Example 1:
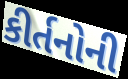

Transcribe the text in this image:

કીર્તનોની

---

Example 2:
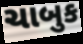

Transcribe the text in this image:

ચાબુક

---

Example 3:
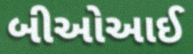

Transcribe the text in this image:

બીઓઆઈ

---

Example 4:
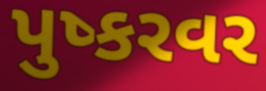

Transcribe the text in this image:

પુષ્કરવર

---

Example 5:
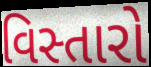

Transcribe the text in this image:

વિસ્તારો